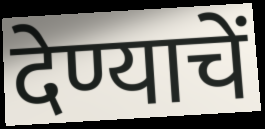
देण्याचें